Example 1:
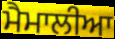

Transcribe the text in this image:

ਮੈਮਾਲੀਆ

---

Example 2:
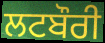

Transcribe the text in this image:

ਲਟਬੌਰੀ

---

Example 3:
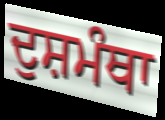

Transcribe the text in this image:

ਦੁਸ਼ਮੰਥਾ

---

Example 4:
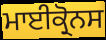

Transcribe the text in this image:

ਮਾਈਕ੍ਰੋਨਸ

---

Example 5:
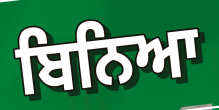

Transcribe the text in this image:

ਬਿਨਿਆ